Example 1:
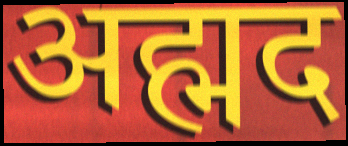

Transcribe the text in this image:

अह्मद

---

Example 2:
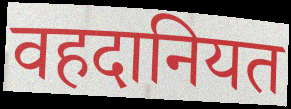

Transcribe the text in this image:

वहदानियत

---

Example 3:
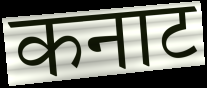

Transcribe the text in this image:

कनाट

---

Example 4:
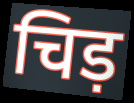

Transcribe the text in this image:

चिड़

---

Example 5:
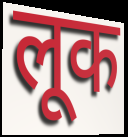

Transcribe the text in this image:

लूक